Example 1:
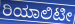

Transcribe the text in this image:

ರಿಯಾಲಿಟೀ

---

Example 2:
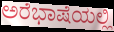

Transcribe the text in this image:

ಅರೆಭಾಷೆಯಲ್ಲಿ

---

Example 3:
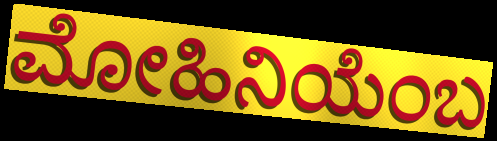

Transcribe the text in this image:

ಮೋಹಿನಿಯೆಂಬ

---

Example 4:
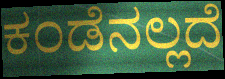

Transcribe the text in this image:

ಕಂಡೆನಲ್ಲದೆ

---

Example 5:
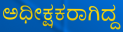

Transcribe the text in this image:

ಅಧೀಕ್ಷಕರಾಗಿದ್ದ